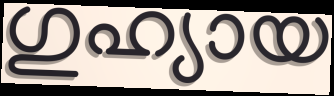
ഗുഹ്യായ